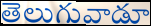
తెలుగువాడూ